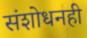
संशोधनही